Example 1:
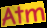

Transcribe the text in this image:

Atm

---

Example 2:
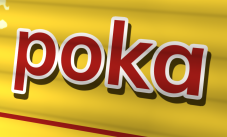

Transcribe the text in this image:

poka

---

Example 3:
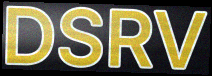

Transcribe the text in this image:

DSRV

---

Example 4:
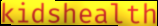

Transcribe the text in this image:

kidshealth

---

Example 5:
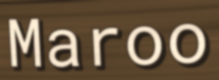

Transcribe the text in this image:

Maroo